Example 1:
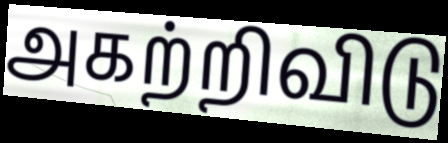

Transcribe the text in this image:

அகற்றிவிடு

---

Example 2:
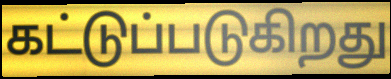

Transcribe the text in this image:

கட்டுப்படுகிறது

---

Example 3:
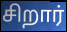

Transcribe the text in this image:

சிறார்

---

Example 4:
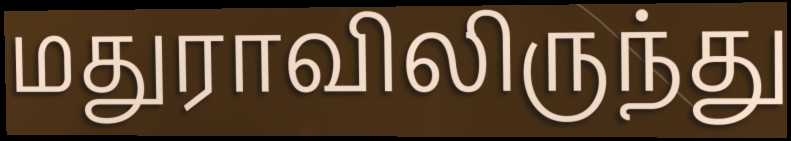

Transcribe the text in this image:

மதுராவிலிருந்து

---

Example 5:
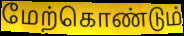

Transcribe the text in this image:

மேற்கொண்டும்